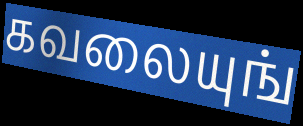
கவலையுங்